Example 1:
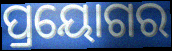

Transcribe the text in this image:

ପ୍ରୟୋଗର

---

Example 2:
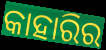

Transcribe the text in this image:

କାହାରିର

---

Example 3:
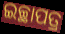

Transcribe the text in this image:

ଇଚ୍ଛାପତ୍ର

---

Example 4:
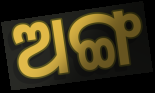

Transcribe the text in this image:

ଅଙ୍ଗ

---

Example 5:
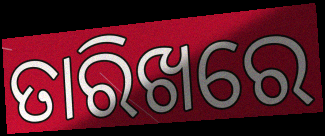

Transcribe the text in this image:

ତାରିଖରେ